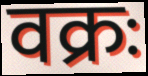
वक्रः